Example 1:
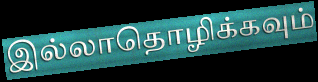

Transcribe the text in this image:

இல்லாதொழிக்கவும்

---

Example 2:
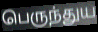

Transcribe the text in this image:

பெருந்துய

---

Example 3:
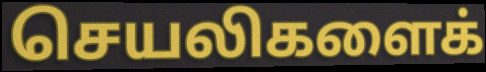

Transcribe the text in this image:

செயலிகளைக்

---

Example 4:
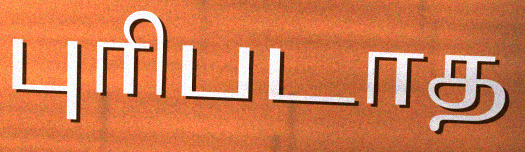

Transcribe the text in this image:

புரிபடாத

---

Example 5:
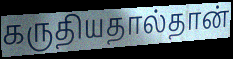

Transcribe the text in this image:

கருதியதால்தான்